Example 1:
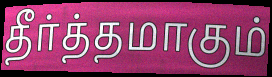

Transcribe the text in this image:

தீர்த்தமாகும்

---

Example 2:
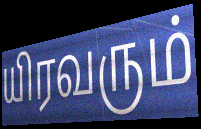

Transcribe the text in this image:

யிரவரும்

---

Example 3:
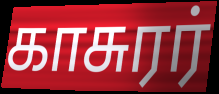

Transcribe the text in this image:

காசுரர்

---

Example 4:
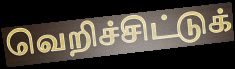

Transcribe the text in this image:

வெறிச்சிட்டுக்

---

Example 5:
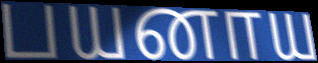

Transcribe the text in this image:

பயனாய